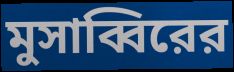
মুসাব্বিরের